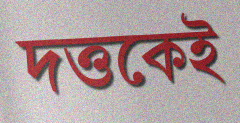
দত্তকেই